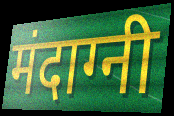
मंदाग्नी